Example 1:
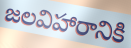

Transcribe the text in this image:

జలవిహారానికి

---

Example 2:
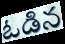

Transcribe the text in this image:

ఓడిన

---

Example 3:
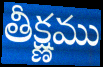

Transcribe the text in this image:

తీక్ష్ణము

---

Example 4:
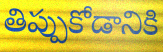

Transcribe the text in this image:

తిప్పుకోడానికి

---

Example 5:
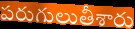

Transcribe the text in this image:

పరుగులుతీశారు